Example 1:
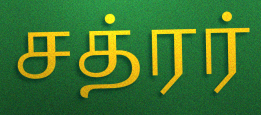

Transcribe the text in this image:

சத்ரர்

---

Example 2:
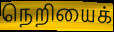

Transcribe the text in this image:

நெறியைக்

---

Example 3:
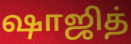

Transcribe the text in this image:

ஷாஜித்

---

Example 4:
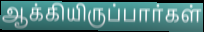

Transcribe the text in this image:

ஆக்கியிருப்பார்கள்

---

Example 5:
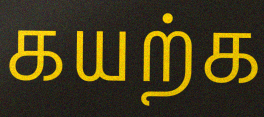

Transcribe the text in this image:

கயற்க